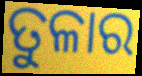
ତୁଳାର